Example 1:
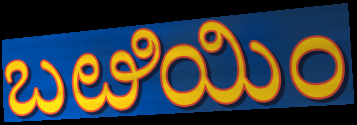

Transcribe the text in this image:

ಬೞಿಯಿಂ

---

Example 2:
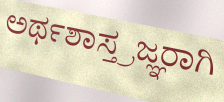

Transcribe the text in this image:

ಅರ್ಥಶಾಸ್ತ್ರಜ್ಞರಾಗಿ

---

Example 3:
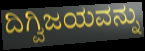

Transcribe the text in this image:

ದಿಗ್ವಿಜಯವನ್ನು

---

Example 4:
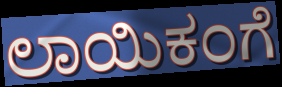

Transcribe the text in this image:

ಲಾಯಿಕಂಗೆ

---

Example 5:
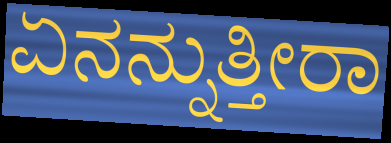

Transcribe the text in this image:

ಏನನ್ನುತ್ತೀರಾ